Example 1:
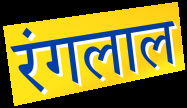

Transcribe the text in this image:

रंगलाल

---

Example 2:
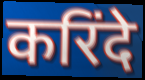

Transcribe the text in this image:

करिंदे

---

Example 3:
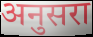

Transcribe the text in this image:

अनुसरा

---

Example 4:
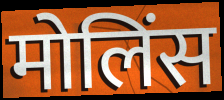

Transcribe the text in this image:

मोलिंस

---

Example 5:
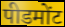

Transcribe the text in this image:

पीडमोंट